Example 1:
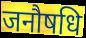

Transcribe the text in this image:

जनौषधि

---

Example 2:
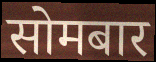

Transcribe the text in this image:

सोमबार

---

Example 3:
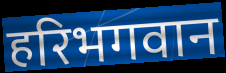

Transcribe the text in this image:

हरिभगवान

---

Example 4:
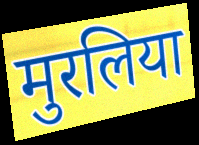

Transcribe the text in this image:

मुरलिया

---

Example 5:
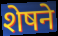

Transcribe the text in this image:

शेषने